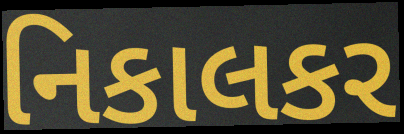
નિકાલકર